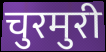
चुरमुरी